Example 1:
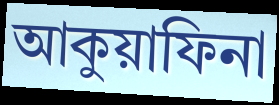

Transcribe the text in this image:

আকুয়াফিনা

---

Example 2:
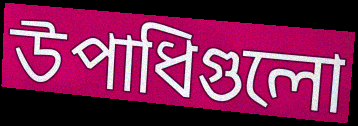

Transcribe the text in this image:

উপাধিগুলো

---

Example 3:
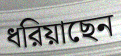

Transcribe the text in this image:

ধরিয়াছেন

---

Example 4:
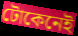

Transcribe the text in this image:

টোকেনেই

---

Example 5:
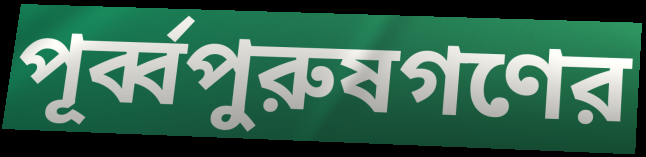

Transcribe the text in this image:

পূর্ব্বপুরুষগণের